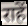
राहें